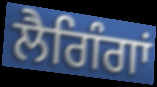
ਲੈਗਿੰਗਾਂ